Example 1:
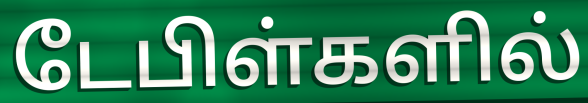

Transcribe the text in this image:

டேபிள்களில்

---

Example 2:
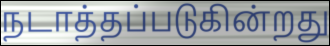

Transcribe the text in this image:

நடாத்தப்படுகின்றது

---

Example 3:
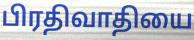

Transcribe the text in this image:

பிரதிவாதியை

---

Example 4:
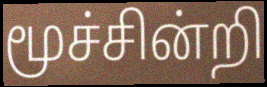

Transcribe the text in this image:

மூச்சின்றி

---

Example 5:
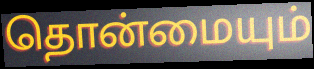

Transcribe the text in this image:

தொன்மையும்